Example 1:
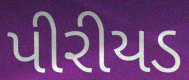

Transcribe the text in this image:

પીરીયડ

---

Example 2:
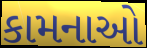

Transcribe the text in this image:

કામનાઓ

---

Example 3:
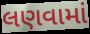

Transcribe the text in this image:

લણવામાં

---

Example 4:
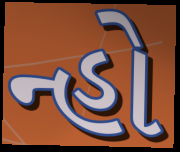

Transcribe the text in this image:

ન્હો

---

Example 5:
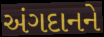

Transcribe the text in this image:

અંગદાનને